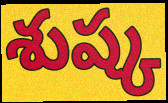
శుష్క